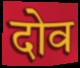
दोव